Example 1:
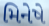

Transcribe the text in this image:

મિનેષે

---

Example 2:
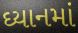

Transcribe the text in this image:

ઘ્યાનમાં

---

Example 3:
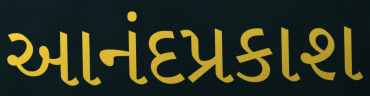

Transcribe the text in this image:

આનંદપ્રકાશ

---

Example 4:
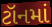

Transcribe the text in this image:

ટૉનમાં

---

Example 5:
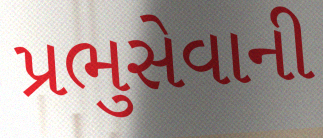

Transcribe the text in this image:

પ્રભુસેવાની